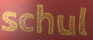
schul